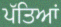
ਪੱਤਿਆਂ